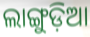
ଲାଙ୍ଗୁଡ଼ିଆ